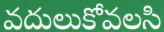
వదులుకోవలసి